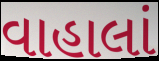
વાહાલાં